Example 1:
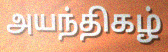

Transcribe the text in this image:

அயந்திகழ்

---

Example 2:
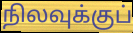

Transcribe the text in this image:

நிலவுக்குப்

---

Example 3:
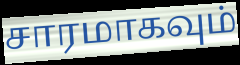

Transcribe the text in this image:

சாரமாகவும்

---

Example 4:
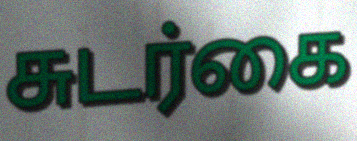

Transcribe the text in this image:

சுடர்கை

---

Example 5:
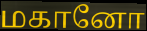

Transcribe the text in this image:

மகானோ